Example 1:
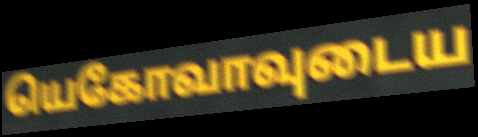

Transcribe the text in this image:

யெகோவாவுடைய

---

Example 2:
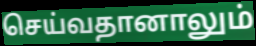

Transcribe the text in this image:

செய்வதானாலும்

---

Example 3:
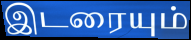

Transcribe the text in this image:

இடரையும்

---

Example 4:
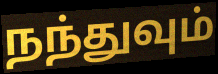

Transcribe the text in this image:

நந்துவும்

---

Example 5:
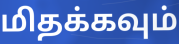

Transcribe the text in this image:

மிதக்கவும்